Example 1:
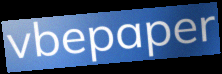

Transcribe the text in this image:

vbepaper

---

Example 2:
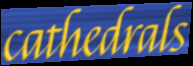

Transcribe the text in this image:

cathedrals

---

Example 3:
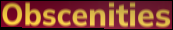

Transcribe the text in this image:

Obscenities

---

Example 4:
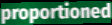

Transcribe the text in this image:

proportioned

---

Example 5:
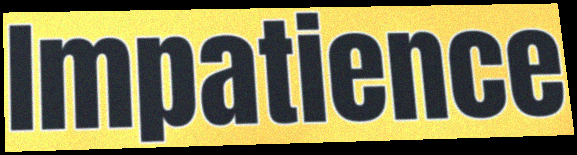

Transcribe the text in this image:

Impatience